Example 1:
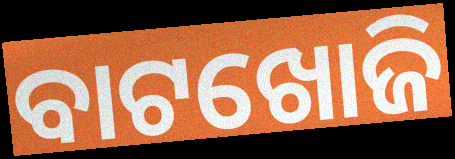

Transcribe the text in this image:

ବାଟଖୋଜି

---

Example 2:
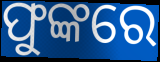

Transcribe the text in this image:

ଫୁଙ୍କରେ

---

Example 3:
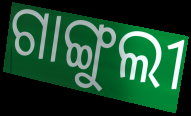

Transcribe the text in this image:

ଗାଙ୍ଗୁଲୀ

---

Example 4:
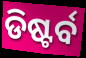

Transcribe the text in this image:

ଡିଷ୍ଟର୍ବ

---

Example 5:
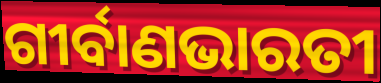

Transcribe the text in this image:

ଗୀର୍ବାଣଭାରତୀ